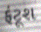
ફંટૂશ